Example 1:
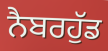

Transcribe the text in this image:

ਨੈਬਰਹੁੱਡ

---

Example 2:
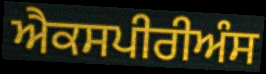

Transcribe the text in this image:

ਐਕਸਪੀਰੀਅੰਸ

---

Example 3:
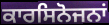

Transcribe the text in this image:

ਕਾਰਸਿਨੋਜਨਾਂ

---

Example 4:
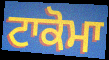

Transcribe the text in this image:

ਟਾਕੋਮਾ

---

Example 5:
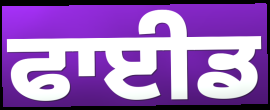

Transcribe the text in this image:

ਫਾਈਡ